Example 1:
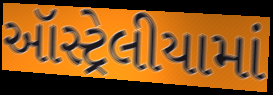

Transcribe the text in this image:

ઑસ્ટ્રેલીયામાં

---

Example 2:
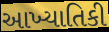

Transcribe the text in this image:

આખ્યાતિકી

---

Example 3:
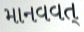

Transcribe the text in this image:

માનવવત્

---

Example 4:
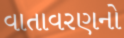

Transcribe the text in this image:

વાતાવરણનો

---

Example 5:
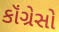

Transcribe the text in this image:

કૉંગ્રેસો